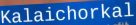
Kalaichorkal